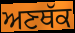
ਅਣਥੱਕ